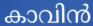
കാവിൻ